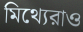
মিথ্যেরাও